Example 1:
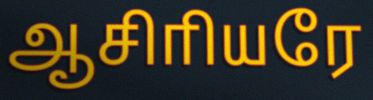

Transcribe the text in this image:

ஆசிரியரே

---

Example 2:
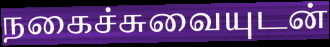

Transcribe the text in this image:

நகைச்சுவையுடன்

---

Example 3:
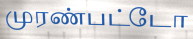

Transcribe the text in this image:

முரண்பட்டோ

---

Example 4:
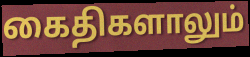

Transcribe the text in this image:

கைதிகளாலும்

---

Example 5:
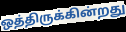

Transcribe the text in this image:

ஒத்திருக்கின்றது